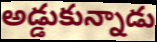
అడ్డుకున్నాడు